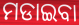
ମଡାଇବା